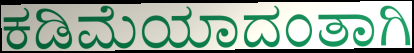
ಕಡಿಮೆಯಾದಂತಾಗಿ